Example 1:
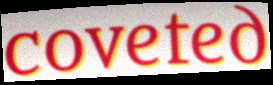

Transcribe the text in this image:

coveted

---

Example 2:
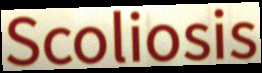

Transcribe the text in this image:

Scoliosis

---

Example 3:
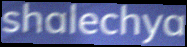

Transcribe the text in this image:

shalechya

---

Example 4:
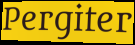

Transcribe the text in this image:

Pergiter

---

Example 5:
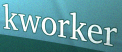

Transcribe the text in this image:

kworker